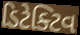
ડિટેક્ટિવ